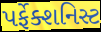
પર્ફેક્શનિસ્ટ